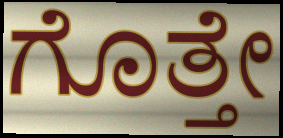
ಗೊತ್ತೇ